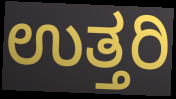
ಉತ್ತರಿ